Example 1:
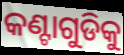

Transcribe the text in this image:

କଣ୍ଟାଗୁଡିକୁ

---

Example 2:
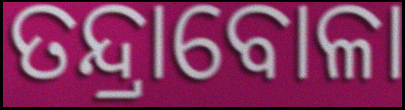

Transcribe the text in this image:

ତନ୍ଦ୍ରାବୋଳା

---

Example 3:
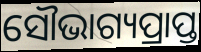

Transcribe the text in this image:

ସୌଭାଗ୍ୟପ୍ରାପ୍ତ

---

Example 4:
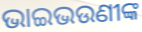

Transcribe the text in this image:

ଭାଇଭଉଣୀଙ୍କ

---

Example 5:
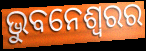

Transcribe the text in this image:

ଭୁବନେଶ୍ୱରର